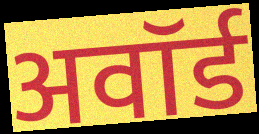
अवॉर्ड